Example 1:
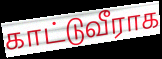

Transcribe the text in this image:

காட்டுவீராக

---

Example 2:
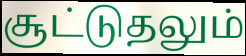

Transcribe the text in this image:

சூட்டுதலும்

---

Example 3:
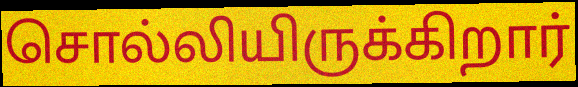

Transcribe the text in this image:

சொல்லியிருக்கிறார்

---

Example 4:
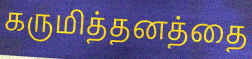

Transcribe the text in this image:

கருமித்தனத்தை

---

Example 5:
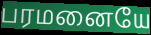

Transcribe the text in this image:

பரமனையே